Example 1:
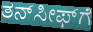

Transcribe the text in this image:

ತನ್‍ಸೀಫ್‍ಗೆ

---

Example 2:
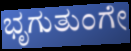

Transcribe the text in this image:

ಭೃಗುತುಂಗೇ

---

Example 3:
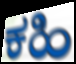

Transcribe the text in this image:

ಕಹಿ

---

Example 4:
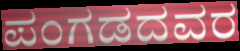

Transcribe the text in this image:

ಪಂಗಡದವರ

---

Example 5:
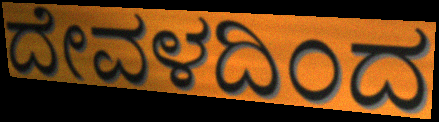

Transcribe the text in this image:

ದೇವಳದಿಂದ